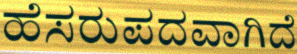
ಹೆಸರುಪದವಾಗಿದೆ